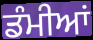
ਡੰਮੀਆਂ